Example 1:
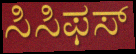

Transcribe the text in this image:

ಸಿಸಿಫಸ್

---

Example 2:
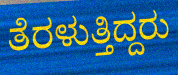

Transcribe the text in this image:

ತೆರಳುತ್ತಿದ್ದರು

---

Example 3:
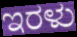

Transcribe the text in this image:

ಇರಳು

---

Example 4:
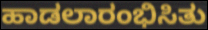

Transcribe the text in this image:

ಹಾಡಲಾರಂಭಿಸಿತು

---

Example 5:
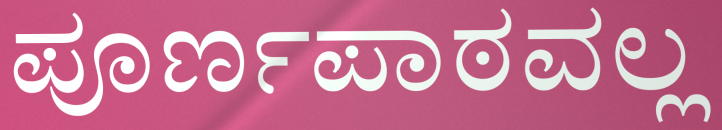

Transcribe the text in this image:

ಪೂರ್ಣಪಾಠವಲ್ಲ